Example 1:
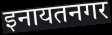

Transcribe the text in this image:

इनायतनगर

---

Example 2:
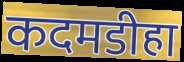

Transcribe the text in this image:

कदमडीहा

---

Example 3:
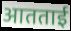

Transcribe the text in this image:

आतताई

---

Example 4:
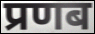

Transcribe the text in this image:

प्रणब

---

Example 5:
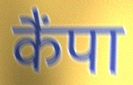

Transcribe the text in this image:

कैंपा